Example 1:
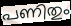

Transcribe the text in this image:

പണിതും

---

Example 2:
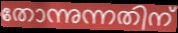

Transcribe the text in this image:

തോന്നുന്നതിന്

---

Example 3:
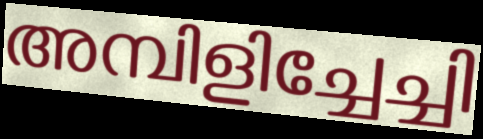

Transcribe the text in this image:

അമ്പിളിച്ചേച്ചി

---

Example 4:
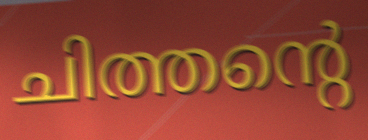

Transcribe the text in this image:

ചിത്തന്റെ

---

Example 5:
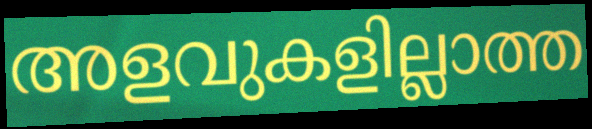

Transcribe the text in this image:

അളവുകളില്ലാത്ത